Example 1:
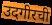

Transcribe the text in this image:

उदगीरची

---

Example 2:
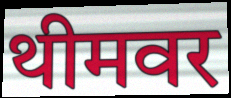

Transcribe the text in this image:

थीमवर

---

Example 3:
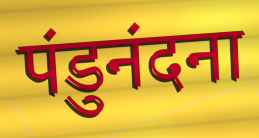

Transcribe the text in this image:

पंडुनंदना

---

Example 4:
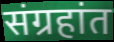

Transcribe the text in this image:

संग्रहांत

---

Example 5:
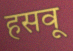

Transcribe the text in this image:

हसवू